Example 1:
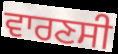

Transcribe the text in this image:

ਵਾਰਣਸੀ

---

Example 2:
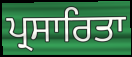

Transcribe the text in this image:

ਪ੍ਰਸਾਰਿਤਾ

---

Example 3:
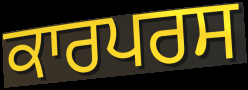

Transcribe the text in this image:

ਕਾਰਪਰਸ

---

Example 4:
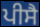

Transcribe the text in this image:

ਪੀਸੈ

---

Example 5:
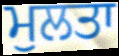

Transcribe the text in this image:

ਮੁਲਤਾ